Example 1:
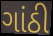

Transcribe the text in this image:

ગાંઠી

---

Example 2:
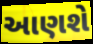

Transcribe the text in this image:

આણશે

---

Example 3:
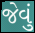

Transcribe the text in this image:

જેવું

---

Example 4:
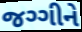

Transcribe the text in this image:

જગ્ગીને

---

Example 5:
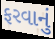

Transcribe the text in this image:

ફરવાનું